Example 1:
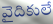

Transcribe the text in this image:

వైదికులే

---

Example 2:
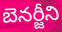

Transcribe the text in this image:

బెనర్జీని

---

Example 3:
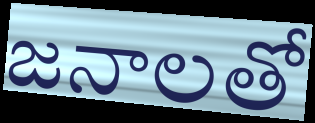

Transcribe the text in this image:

జనాలతో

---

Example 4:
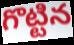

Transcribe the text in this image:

గొట్టిన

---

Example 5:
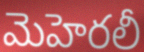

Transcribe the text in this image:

మెహెరలీ